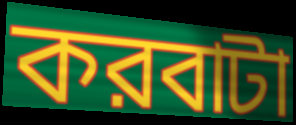
করবাটা